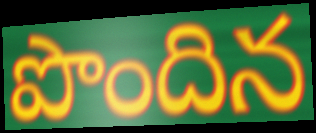
పొందిన